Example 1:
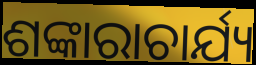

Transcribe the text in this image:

ଶଙ୍କାରାଚାର୍ଯ୍ୟ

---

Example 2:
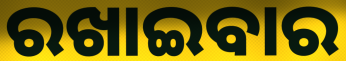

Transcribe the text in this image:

ରଖାଇବାର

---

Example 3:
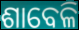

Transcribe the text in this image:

ଶାବେଳି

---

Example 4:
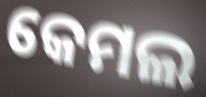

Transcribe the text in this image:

କେମଲ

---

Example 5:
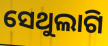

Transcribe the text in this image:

ସେଥୁଲାଗି